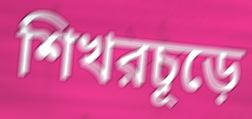
শিখরচূড়ে